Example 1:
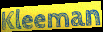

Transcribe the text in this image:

Kleeman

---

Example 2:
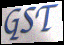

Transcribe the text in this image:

GST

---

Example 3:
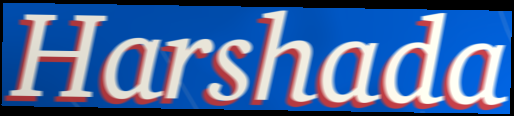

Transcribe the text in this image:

Harshada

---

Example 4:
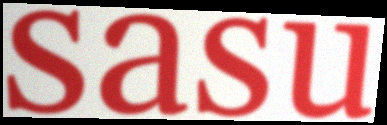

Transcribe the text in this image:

sasu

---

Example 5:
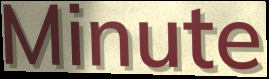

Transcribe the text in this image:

Minute